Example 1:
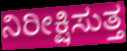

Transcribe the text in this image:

ನಿರೀಕ್ಷಿಸುತ್ತ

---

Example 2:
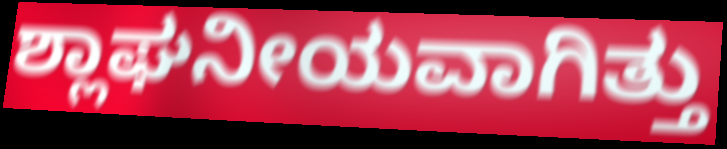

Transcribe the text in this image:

ಶ್ಲಾಘನೀಯವಾಗಿತ್ತು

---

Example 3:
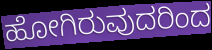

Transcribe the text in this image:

ಹೋಗಿರುವುದರಿಂದ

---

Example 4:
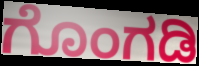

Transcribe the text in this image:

ಗೊಂಗಡಿ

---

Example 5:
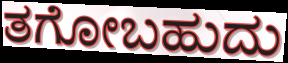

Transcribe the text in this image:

ತಗೋಬಹುದು